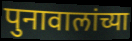
पुनावालांच्या